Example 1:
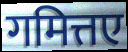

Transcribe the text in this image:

गमित्तए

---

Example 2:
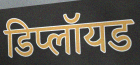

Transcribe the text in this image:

डिप्लॉयड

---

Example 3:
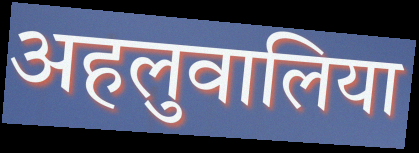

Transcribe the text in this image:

अहलुवालिया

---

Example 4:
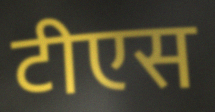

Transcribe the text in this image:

टीएस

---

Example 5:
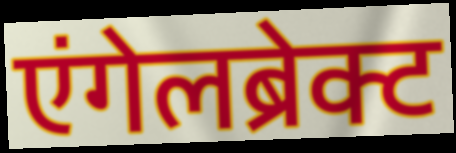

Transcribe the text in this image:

एंगेलब्रेक्ट